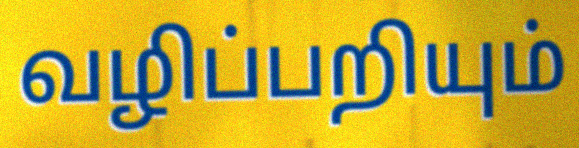
வழிப்பறியும்